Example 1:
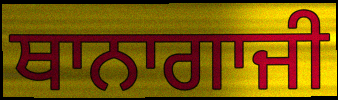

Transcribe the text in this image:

ਥਾਨਾਗਾਜੀ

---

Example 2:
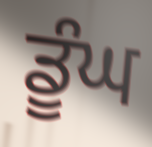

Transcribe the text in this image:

ਡੂੰਘ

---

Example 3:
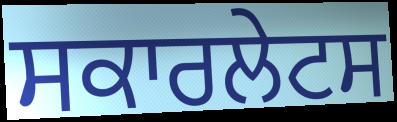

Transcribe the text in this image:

ਸਕਾਰਲੇਟਸ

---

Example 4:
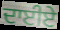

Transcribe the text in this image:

ਦਾਈਏ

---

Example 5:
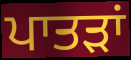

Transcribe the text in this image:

ਪਾਤੜਾਂ